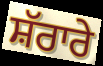
ਸ਼ੱਰਾਰੇ